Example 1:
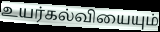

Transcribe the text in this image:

உயர்கல்வியையும்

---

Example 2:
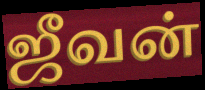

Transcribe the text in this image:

ஜீவன்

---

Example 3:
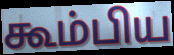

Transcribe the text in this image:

கூம்பிய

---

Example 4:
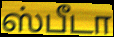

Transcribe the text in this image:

ஸ்பீடா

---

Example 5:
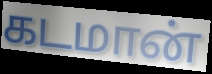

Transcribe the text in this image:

கடமான்